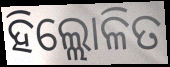
ହିଲ୍ଲୋଳିତ